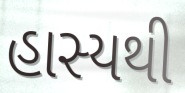
હાસ્યથી